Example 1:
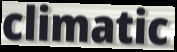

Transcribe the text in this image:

climatic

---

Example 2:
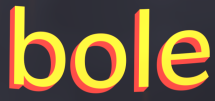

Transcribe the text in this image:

bole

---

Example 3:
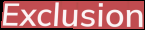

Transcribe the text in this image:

Exclusion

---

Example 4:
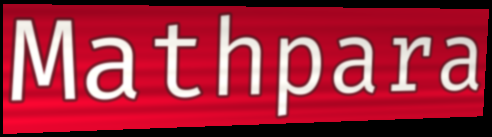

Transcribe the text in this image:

Mathpara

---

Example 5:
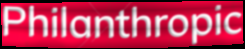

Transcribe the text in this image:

Philanthropic